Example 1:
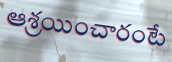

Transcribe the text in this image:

ఆశ్రయించారంటే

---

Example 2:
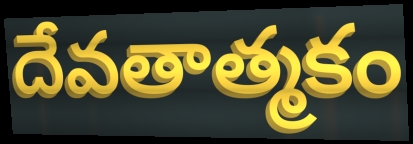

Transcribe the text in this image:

దేవతాత్మకం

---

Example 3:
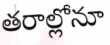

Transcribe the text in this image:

తరాల్లోనూ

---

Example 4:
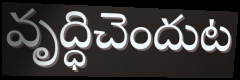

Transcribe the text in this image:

వృద్ధిచెందుట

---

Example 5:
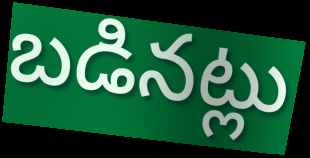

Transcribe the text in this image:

బడినట్లు